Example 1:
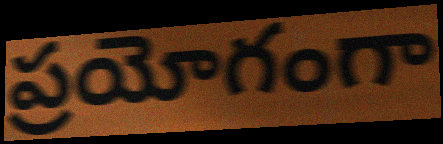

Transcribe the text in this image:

ప్రయోగంగా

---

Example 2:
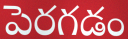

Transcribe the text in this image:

పెరగడం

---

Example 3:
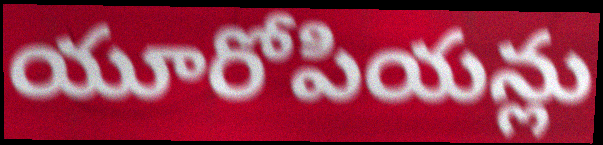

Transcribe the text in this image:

యూరోపియన్లు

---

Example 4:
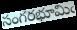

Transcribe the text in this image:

సంగరభూమిఁ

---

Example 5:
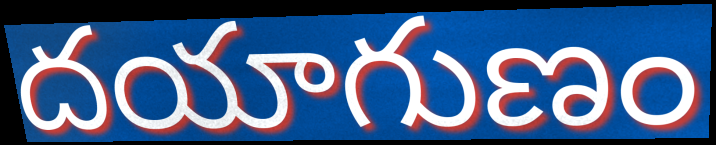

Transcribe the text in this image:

దయాగుణం